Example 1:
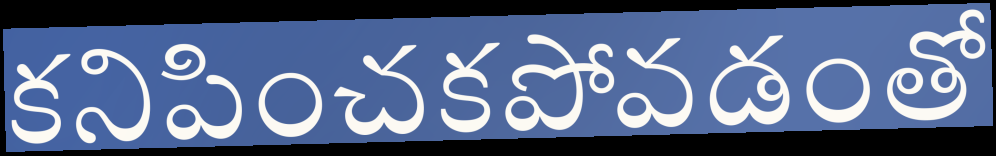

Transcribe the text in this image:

కనిపించకపోవడంతో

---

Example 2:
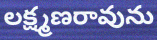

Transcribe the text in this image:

లక్ష్మణరావును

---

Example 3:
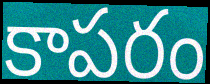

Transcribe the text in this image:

కాపరం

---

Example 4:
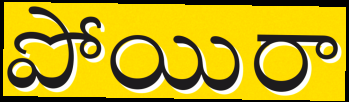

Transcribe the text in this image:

పోయిరా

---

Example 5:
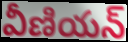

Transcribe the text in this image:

వీణియన్